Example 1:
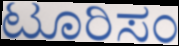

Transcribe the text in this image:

ಟೂರಿಸಂ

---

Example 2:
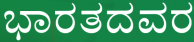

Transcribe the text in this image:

ಭಾರತದವರ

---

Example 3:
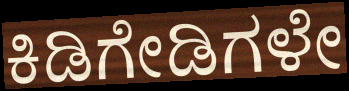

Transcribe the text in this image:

ಕಿಡಿಗೇಡಿಗಳೇ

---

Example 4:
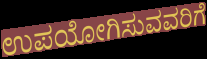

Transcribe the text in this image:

ಉಪಯೋಗಿಸುವವರಿಗೆ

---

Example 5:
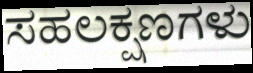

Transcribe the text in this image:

ಸಹಲಕ್ಷಣಗಳು